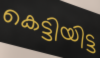
കെട്ടിയിട്ട